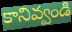
కానివ్వండి